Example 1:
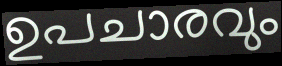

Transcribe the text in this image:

ഉപചാരവും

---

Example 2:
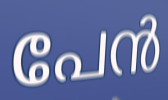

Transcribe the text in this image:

പേൻ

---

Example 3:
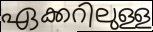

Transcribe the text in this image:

ഏക്കറിലുള്ള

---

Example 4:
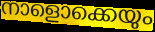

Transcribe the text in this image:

നാളൊക്കെയും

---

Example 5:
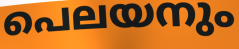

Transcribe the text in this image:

പെലയനും